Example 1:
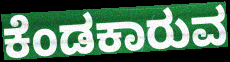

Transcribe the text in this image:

ಕೆಂಡಕಾರುವ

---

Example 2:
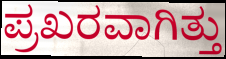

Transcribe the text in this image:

ಪ್ರಖರವಾಗಿತ್ತು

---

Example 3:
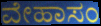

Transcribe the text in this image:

ವೇಹಾಸಂ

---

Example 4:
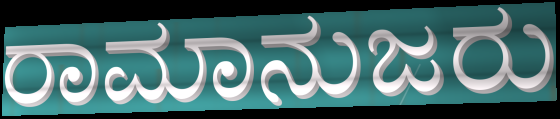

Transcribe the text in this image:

ರಾಮಾನುಜರು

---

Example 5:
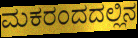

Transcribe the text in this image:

ಮಕರಂದದಲ್ಲಿನ